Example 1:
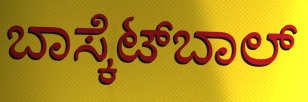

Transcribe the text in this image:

ಬಾಸ್ಕೆಟ್‍ಬಾಲ್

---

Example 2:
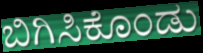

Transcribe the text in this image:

ಬಿಗಿಸಿಕೊಂಡು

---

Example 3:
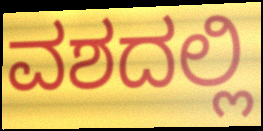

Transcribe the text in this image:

ವಶದಲ್ಲಿ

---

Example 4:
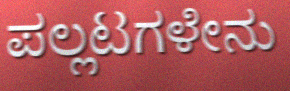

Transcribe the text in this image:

ಪಲ್ಲಟಗಳೇನು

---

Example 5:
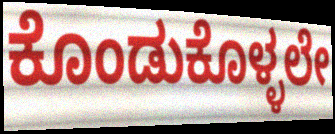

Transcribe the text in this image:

ಕೊಂಡುಕೊಳ್ಳಲೇ